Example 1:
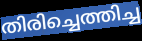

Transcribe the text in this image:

തിരിച്ചെത്തിച്ച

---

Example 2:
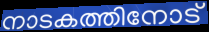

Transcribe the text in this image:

നാടകത്തിനോട്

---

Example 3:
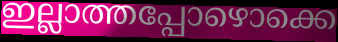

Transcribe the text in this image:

ഇല്ലാത്തപ്പോഴൊക്കെ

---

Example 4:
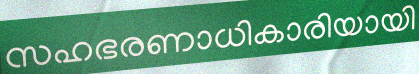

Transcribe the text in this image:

സഹഭരണാധികാരിയായി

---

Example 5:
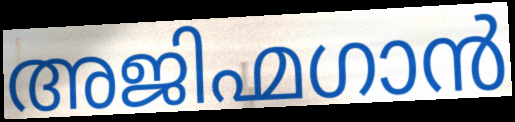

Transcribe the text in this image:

അജിഹ്മഗാൻ